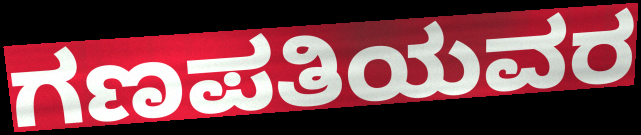
ಗಣಪತಿಯವರ